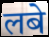
लबे